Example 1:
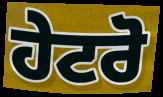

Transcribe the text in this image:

ਹੇਟਰੋ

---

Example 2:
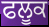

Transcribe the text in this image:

ਫਲੂਕ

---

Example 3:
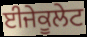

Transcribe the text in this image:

ਈਜੇਕੂਲੇਟ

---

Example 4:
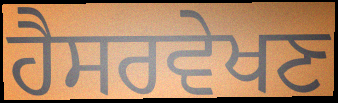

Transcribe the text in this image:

ਹੈਸਰਵੇਖਣ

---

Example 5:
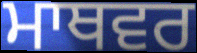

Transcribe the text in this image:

ਮਾਥਵਰ